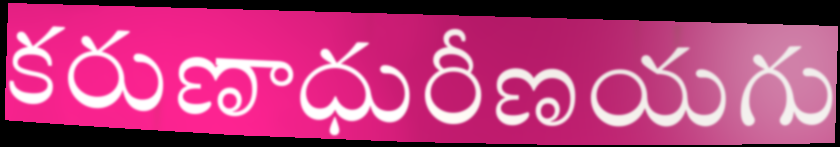
కరుణాధురీణయగు